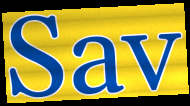
Sav